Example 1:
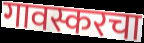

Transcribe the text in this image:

गावस्करचा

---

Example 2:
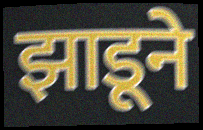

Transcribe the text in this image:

झाडूने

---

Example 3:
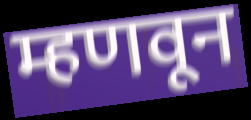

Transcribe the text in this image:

म्हणवून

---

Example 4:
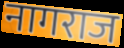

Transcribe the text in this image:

नागराज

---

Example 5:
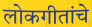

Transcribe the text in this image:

लोकगीतांचे